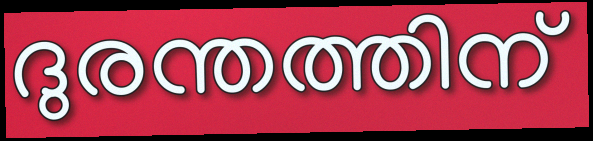
ദുരന്തത്തിന്